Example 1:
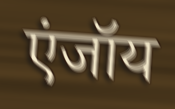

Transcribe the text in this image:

एंजॉय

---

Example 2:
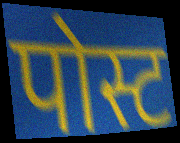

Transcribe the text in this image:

पोस्ट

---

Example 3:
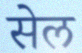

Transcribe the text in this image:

सेल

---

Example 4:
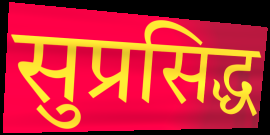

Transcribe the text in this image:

सुप्रसिद्ध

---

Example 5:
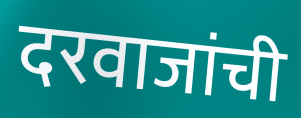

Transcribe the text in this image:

दरवाजांची